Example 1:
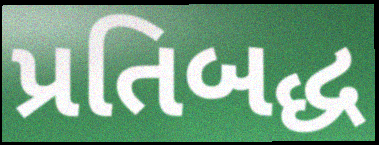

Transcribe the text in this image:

પ્રતિબદ્ધ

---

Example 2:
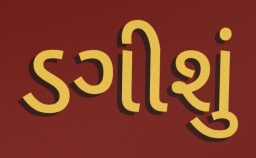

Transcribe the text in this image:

ડગીશું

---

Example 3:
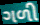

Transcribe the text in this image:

ગળી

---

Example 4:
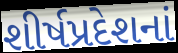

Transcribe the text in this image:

શીર્ષપ્રદેશનાં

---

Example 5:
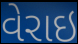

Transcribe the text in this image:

વેરાઇ